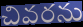
చివరను